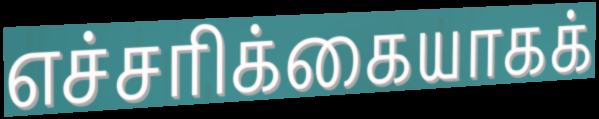
எச்சரிக்கையாகக்